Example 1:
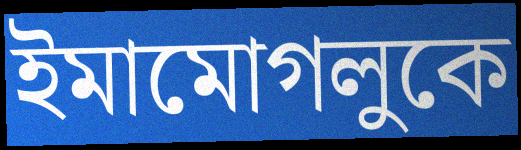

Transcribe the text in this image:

ইমামোগলুকে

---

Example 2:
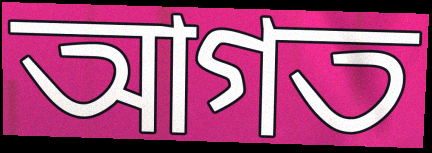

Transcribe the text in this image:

আগত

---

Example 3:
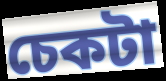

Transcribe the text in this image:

চেকটা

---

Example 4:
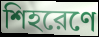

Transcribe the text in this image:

শিহরেণে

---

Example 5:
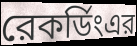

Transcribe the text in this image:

রেকর্ডিংএর